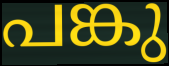
പങ്കു